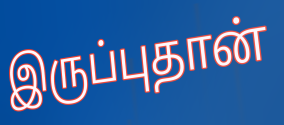
இருப்புதான்